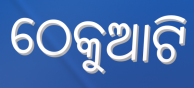
ଠେକୁଆଟି